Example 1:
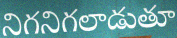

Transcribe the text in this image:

నిగనిగలాడుతూ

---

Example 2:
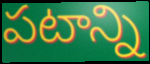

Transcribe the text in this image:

పటాన్ని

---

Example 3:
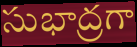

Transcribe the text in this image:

సుభాద్రగా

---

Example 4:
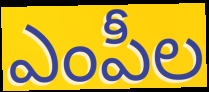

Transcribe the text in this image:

ఎంపీల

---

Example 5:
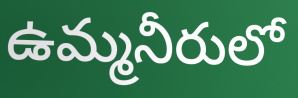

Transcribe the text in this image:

ఉమ్మనీరులో